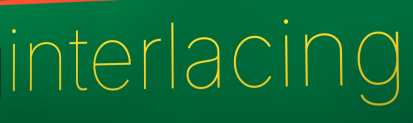
interlacing